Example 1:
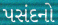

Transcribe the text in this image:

પસંદનો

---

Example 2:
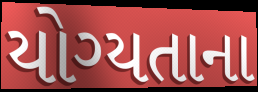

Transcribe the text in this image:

યોગ્યતાના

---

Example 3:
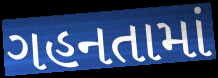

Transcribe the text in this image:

ગહનતામાં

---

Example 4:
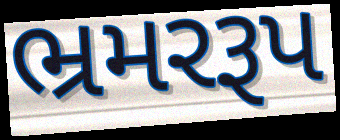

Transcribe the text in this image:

ભ્રમરરૂપ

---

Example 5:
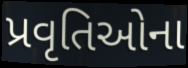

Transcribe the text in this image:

પ્રવૃતિઓના